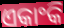
ଏକାଂକି